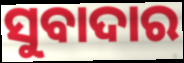
ସୁବାଦାର